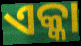
ଏକ୍କା